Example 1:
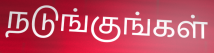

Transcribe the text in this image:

நடுங்குங்கள்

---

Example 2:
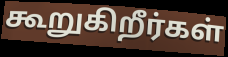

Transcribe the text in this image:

கூறுகிறீர்கள்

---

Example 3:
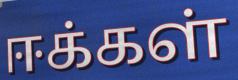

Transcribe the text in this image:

ஈக்கள்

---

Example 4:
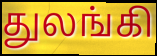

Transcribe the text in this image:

துலங்கி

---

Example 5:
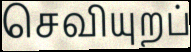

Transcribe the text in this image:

செவியுறப்